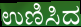
ಉಣಿಸಿದ